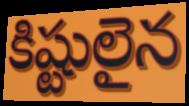
కిష్టులైన